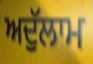
ਅਦੁੱਲਾਮ